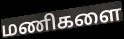
மணிகளை